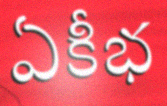
ఏకీభ